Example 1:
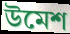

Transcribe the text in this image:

উমেশ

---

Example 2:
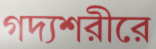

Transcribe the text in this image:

গদ্যশরীরে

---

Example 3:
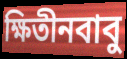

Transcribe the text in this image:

ক্ষিতীনবাবু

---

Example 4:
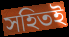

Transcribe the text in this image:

সহিতই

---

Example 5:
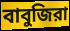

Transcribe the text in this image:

বাবুজিরা